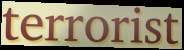
terrorist